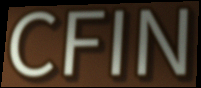
CFIN